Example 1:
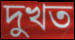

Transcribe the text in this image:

দুখত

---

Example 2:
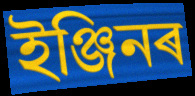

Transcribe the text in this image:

ইঞ্জিনৰ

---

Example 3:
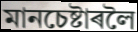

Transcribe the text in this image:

মানচেষ্টাৰলৈ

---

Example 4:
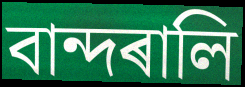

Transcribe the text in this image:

বান্দৰালি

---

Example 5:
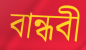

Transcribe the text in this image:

বান্ধবী